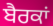
ਬੈਰਕਾਂ